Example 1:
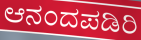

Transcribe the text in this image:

ಆನಂದಪಡಿರಿ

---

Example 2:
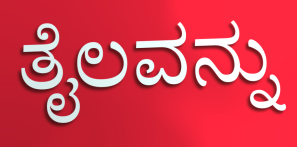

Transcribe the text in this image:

ತೈಲವನ್ನು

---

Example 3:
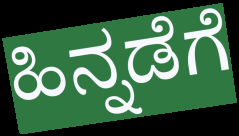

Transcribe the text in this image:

ಹಿನ್ನಡೆಗೆ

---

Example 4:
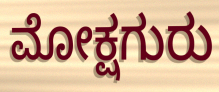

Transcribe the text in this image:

ಮೋಕ್ಷಗುರು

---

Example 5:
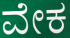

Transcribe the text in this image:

ವೇಕ